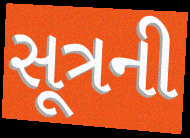
સૂત્રની